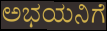
ಅಭಯನಿಗೆ